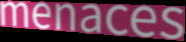
menaces